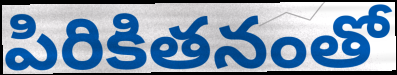
పిరికితనంతో